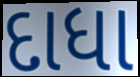
દાધા